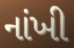
નાંખી